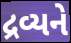
દ્રવ્યને